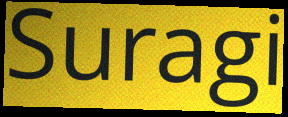
Suragi